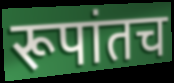
रूपांतच